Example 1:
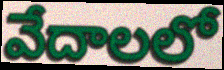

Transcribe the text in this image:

వేదాలలో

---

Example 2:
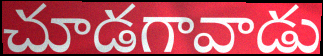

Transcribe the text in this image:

చూడగావాడు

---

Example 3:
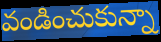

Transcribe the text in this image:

వండించుకున్నా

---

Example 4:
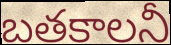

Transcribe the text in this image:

బతకాలనీ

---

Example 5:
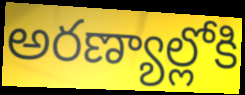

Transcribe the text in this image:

అరణ్యాల్లోకి